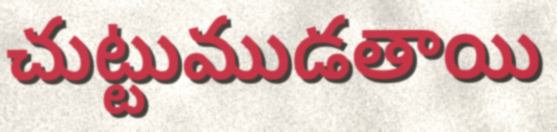
చుట్టుముడతాయి